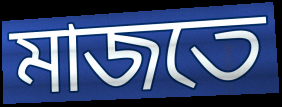
মাজতে